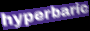
hyperbaric